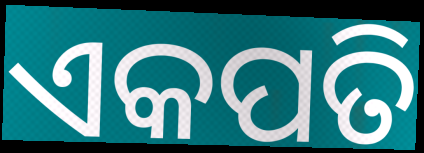
ଏକପତି